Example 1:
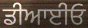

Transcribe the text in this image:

ਡੀਆਈਓ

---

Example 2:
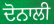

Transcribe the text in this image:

ਦੋਨਾਲੀ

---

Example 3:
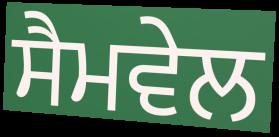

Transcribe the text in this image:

ਸੈਮਵੇਲ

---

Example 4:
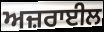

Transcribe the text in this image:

ਅਜ਼ਰਾਈਲ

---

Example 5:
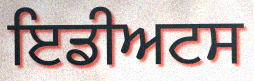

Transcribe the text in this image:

ਇਡੀਅਟਸ